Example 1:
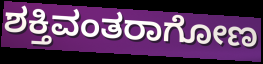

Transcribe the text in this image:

ಶಕ್ತಿವಂತರಾಗೋಣ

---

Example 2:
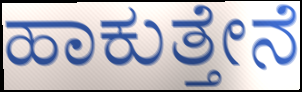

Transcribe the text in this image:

ಹಾಕುತ್ತೇನೆ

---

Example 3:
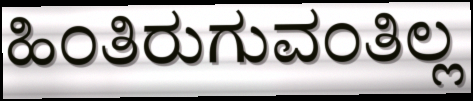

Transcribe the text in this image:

ಹಿಂತಿರುಗುವಂತಿಲ್ಲ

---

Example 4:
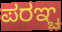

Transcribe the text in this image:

ಪರಞ್ಚ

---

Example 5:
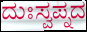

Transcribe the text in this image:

ದುಃಸ್ವಪ್ನದ